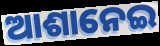
ଆଶାନେଇ